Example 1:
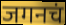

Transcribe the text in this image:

जगनचं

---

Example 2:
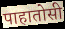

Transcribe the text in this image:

पाहातोसी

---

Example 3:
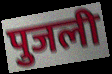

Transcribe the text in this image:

पुजली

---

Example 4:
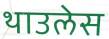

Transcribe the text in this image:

थाउलेस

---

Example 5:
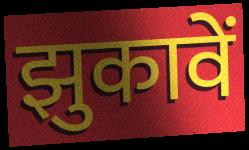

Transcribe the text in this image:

झुकावें